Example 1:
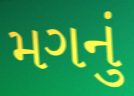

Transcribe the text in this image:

મગનું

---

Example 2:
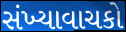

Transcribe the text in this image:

સંખ્યાવાચકો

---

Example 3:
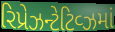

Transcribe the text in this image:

રિપ્રેઝન્ટેટિવ્ઝમાં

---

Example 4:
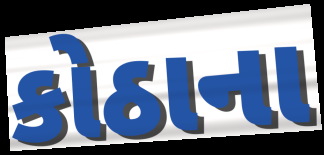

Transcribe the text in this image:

કોઠાના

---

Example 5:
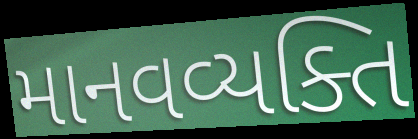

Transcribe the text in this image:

માનવવ્યક્તિ